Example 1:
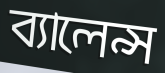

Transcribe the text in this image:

ব্যালেন্স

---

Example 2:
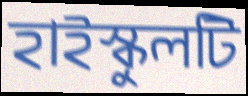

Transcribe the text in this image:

হাইস্কুলটি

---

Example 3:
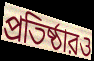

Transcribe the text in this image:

প্রতিষ্ঠারও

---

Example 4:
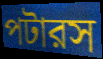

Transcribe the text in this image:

পটারস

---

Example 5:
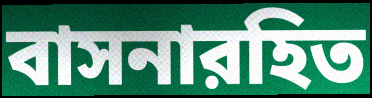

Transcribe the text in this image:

বাসনারহিত